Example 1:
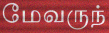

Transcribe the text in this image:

மேவருந்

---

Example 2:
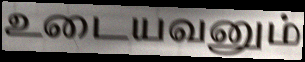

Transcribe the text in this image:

உடையவனும்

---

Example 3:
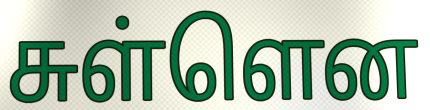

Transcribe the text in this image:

சுள்ளென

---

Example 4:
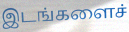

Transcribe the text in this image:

இடங்களைச்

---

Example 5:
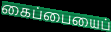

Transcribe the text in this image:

கைப்பையைப்